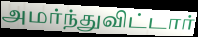
அமர்ந்துவிட்டார்